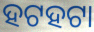
ହଟହଟା